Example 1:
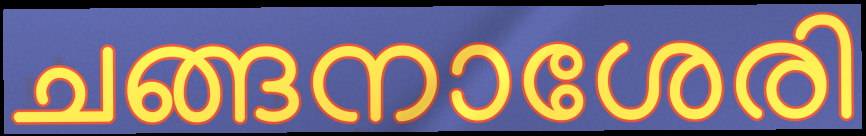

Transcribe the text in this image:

ചങ്ങനാശേരി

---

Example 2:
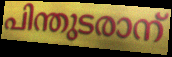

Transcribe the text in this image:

പിന്തുടരാന്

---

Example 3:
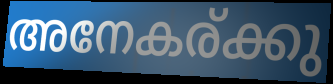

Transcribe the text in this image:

അനേകര്ക്കു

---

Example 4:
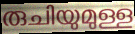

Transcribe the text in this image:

രുചിയുമുള്ള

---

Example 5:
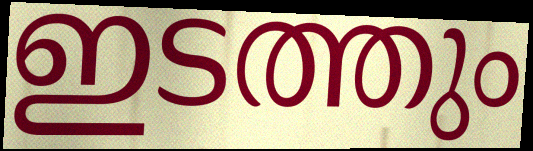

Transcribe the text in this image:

ഇടത്തും